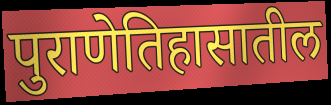
पुराणेतिहासातील